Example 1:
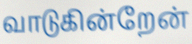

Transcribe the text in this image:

வாடுகின்றேன்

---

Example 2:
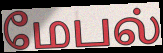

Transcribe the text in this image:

மேபல்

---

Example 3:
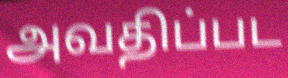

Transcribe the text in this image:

அவதிப்பட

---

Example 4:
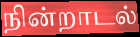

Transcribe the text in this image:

நின்றாடல்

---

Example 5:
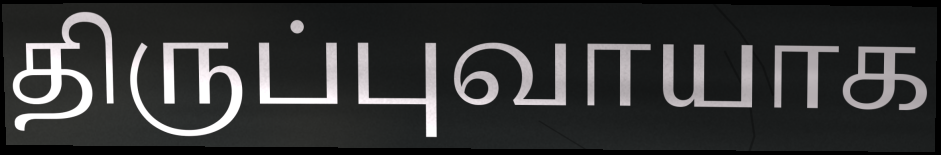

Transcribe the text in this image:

திருப்புவாயாக